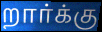
றார்க்கு